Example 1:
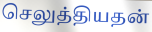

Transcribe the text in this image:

செலுத்தியதன்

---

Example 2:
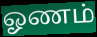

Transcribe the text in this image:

ஓணம்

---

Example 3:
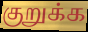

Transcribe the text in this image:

குறுக்க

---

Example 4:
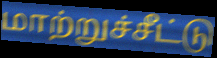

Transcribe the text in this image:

மாற்றுச்சீட்டு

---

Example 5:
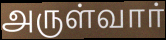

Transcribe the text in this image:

அருள்வார்